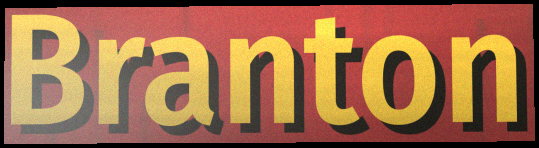
Branton